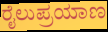
ರೈಲುಪ್ರಯಾಣ